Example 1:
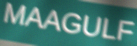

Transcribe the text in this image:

MAAGULF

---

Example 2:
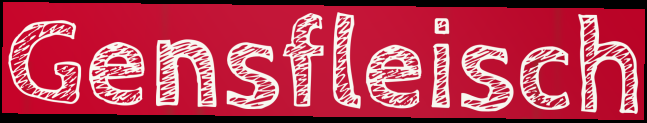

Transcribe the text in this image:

Gensfleisch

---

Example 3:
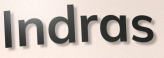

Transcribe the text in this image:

Indras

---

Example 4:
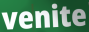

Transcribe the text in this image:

venite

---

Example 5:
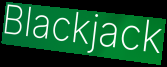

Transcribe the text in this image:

Blackjack